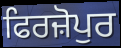
ਫਿਰਜ਼ੋਪੁਰ